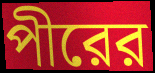
পীরের